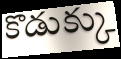
కొడుక్కు